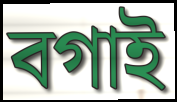
বগাই